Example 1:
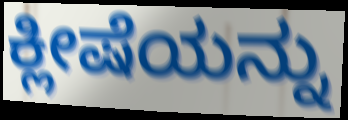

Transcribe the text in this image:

ಕ್ಲೀಷೆಯನ್ನು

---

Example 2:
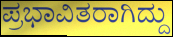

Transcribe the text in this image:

ಪ್ರಭಾವಿತರಾಗಿದ್ದು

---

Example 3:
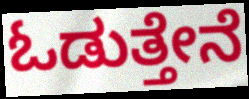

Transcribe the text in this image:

ಓಡುತ್ತೇನೆ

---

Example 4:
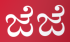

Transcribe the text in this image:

ಜೆಜೆ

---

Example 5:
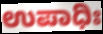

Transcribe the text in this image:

ಉಪಾಧಿಃ